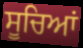
ਸੂਚਿਆਂ